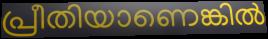
പ്രീതിയാണെങ്കിൽ